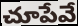
చూపేవే